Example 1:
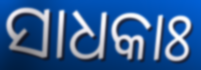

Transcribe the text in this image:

ସାଧକାଃ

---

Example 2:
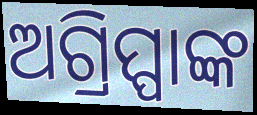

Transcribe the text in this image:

ଅଗ୍ରିପ୍ପାଙ୍କ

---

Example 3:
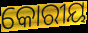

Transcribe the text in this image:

କୋରୀୟ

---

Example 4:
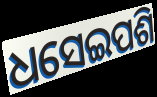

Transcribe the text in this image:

ଧସେଇପଶି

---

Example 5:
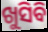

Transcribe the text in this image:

ଖୁସିବି